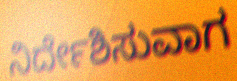
ನಿರ್ದೇಶಿಸುವಾಗ